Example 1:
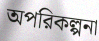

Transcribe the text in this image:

অপরিকল্পনা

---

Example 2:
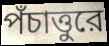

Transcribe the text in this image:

পঁচাত্তুরে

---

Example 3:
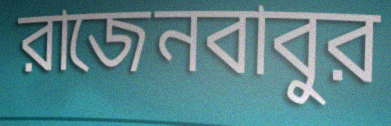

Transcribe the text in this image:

রাজেনবাবুর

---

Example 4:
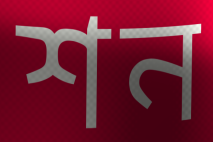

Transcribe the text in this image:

শন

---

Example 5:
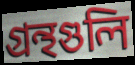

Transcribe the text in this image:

গ্রন্থগুলি